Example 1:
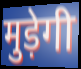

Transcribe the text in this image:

मुड़ेगी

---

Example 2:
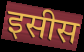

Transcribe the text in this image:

इसीस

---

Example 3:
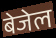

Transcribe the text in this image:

बेजेल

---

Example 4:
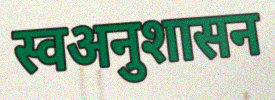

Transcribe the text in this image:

स्वअनुशासन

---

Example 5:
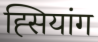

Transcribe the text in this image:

ह्सियांग